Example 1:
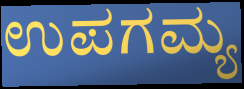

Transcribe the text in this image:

ಉಪಗಮ್ಯ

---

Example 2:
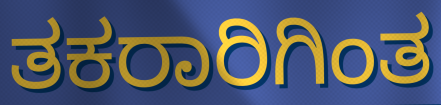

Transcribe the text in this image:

ತಕರಾರಿಗಿಂತ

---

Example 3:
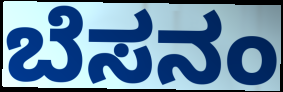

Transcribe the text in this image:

ಬೆಸನಂ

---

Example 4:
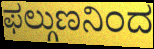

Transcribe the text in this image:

ಫಲ್ಗುಣನಿಂದ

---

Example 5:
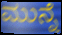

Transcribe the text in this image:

ಮುನ್ನೆ